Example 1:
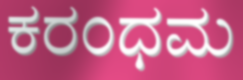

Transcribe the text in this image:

ಕರಂಧಮ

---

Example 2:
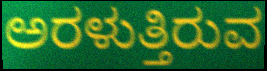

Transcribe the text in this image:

ಅರಳುತ್ತಿರುವ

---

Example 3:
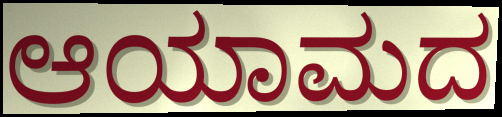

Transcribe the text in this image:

ಆಯಾಮದ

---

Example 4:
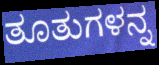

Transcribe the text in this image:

ತೂತುಗಳನ್ನ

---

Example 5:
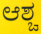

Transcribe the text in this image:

ಆಶ್ಚ